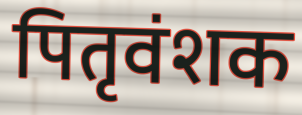
पितृवंशक